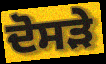
ਦੋਸੜੇ